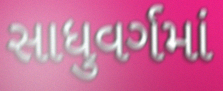
સાધુવર્ગમાં